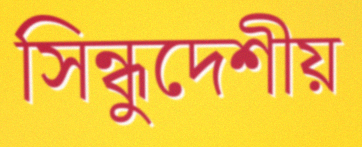
সিন্ধুদেশীয়